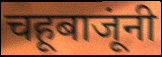
चहूबाजूंनी